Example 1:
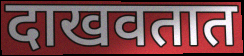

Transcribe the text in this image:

दाखवतात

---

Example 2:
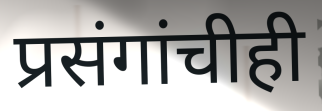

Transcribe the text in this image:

प्रसंगांचीही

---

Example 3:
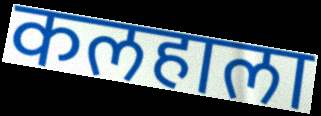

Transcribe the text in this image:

कलहाला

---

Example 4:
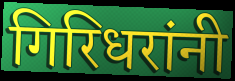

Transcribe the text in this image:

गिरिधरांनी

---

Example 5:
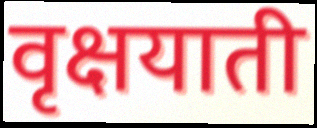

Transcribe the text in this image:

वृक्षयाती